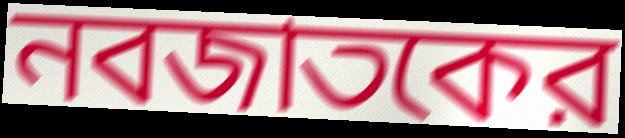
নবজাতকের